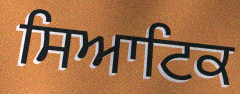
ਸਿਆਟਿਕ